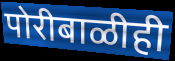
पोरीबाळीही